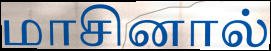
மாசினால்